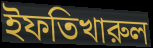
ইফতিখারুল